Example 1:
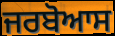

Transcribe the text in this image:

ਜਰਬੋਆਸ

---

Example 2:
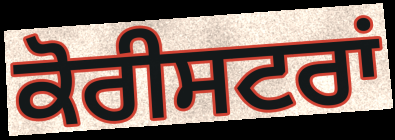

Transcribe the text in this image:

ਕੋਰੀਸਟਰਾਂ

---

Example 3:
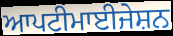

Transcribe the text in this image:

ਆਪਟੀਮਾਈਜੇਸ਼ਨ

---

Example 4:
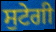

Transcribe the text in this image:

ਸੁਟੇਗੀ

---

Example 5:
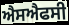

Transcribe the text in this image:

ਐਸਐਫਸੀ